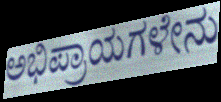
ಅಭಿಪ್ರಾಯಗಳೇನು